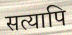
सत्यापि